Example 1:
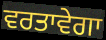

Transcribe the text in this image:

ਵਰਤਾਵੇਗਾ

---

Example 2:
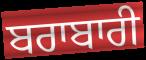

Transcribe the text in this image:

ਬਰਾਬਾਰੀ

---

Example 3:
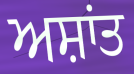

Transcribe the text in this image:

ਅਸ਼ਾਂਤ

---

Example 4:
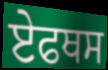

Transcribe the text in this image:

ਏਫਥਸ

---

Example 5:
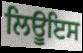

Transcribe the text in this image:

ਲਿਊਇਸ